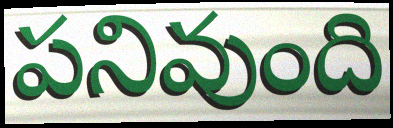
పనివుంది